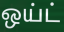
ஒய்ட்